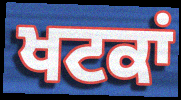
ਖਟਕਾਂ